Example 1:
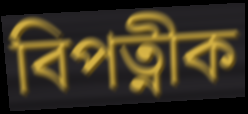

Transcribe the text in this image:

বিপত্নীক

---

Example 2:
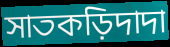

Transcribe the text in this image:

সাতকড়িদাদা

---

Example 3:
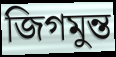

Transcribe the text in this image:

জিগমুন্ত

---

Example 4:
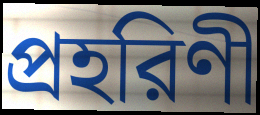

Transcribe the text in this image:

প্রহরিণী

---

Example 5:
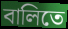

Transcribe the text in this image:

বালিতে